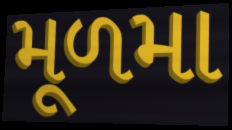
મૂળમા